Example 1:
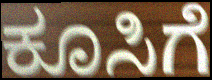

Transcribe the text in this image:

ಕೂಸಿಗೆ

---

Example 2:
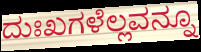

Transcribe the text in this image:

ದುಃಖಗಳೆಲ್ಲವನ್ನೂ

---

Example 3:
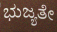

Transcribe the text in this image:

ಭುಜ್ಯತೇ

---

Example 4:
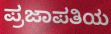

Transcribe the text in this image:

ಪ್ರಜಾಪತಿಯ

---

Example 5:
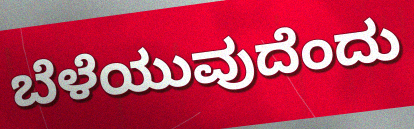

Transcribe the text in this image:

ಬೆಳೆಯುವುದೆಂದು